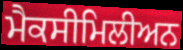
ਮੈਕਸੀਮਿਲੀਅਨ